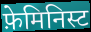
फ़ेमिनिस्ट